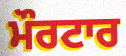
ਮੌਰਟਾਰ